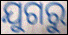
ଯୁଗରୁ